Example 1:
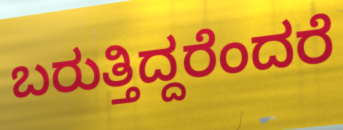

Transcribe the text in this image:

ಬರುತ್ತಿದ್ದರೆಂದರೆ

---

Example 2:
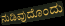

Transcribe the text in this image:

ನುಡಿವುದೊಂದು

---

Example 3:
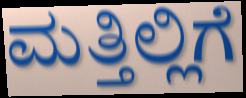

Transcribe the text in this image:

ಮತ್ತಿಲ್ಲಿಗೆ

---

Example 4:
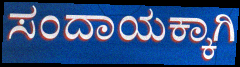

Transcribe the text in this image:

ಸಂದಾಯಕ್ಕಾಗಿ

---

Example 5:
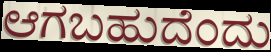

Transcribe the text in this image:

ಆಗಬಹುದೆಂದು